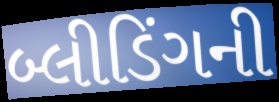
બ્લીડિંગની